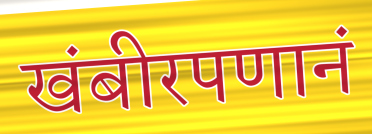
खंबीरपणानं